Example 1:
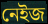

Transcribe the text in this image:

নেইজ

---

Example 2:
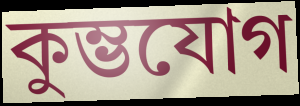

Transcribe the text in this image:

কুম্ভযোগ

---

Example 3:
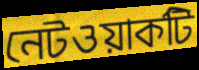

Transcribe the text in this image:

নেটওয়ার্কটি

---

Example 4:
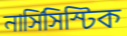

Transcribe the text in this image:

নার্সিসিস্টিক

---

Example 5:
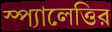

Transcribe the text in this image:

স্প্যালেত্তির